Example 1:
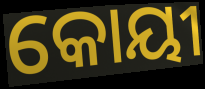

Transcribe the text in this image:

କୋୟୀ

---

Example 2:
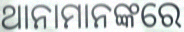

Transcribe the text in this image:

ଥାନାମାନଙ୍କରେ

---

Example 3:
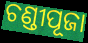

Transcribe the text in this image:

ଚଣ୍ଡୀପୂଜା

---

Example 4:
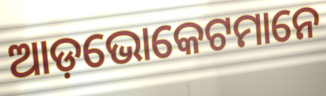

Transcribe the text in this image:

ଆଡ଼ଭୋକେଟମାନେ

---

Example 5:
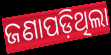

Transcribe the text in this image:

ଜଣାପଡ଼ିଥିଲା